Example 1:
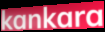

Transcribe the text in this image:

kankara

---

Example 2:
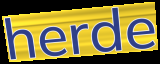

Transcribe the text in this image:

herde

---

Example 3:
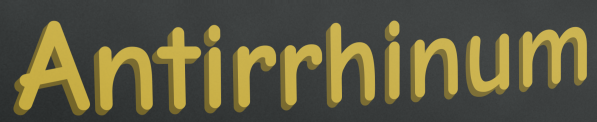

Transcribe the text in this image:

Antirrhinum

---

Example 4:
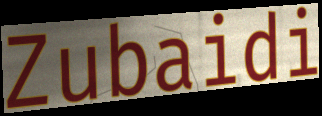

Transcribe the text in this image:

Zubaidi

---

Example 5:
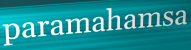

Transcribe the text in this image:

paramahamsa